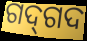
ଗଦ୍‍ଗଦ